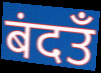
बंदउँ